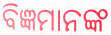
ବିଜ୍ଞମାନଙ୍କ